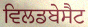
ਵਿਲਡਬੇਸੈਟ